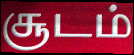
சூடம்